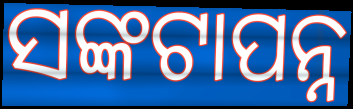
ସଙ୍କଟାପନ୍ନ